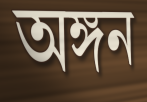
অঙ্গন